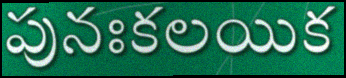
పునఃకలయిక